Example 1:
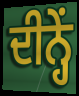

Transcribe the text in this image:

ਦੀਨ੍ਹੇਂ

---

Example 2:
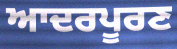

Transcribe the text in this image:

ਆਦਰਪੂਰਣ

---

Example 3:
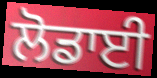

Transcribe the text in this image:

ਲੋਡਾਈ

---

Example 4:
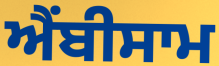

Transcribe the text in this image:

ਐਂਬੀਸਾਮ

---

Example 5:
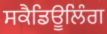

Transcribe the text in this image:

ਸਕੈਡਿਊਲਿੰਗ